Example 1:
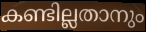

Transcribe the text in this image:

കണ്ടില്ലതാനും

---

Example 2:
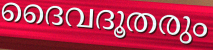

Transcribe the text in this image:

ദൈവദൂതരും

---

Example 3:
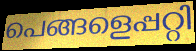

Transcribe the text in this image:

പെങ്ങളെപ്പറ്റി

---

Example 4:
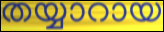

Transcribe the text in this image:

തയ്യാറായ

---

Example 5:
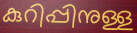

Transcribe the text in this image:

കുറിപ്പിനുള്ള